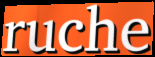
ruche